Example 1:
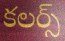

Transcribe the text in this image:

కలర్స్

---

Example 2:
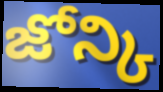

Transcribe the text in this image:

జోన్కి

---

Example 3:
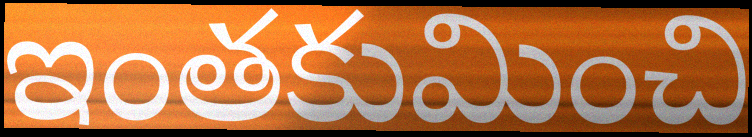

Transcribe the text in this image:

ఇంతకుమించి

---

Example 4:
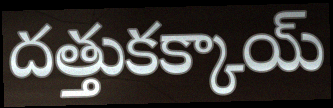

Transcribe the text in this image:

దత్తుకక్కాయ్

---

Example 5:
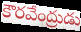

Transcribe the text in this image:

కౌరవేంద్రుడు